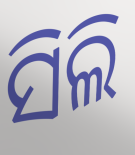
ସିଲି